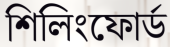
শিলিংফোর্ড